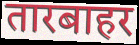
तारबाहर